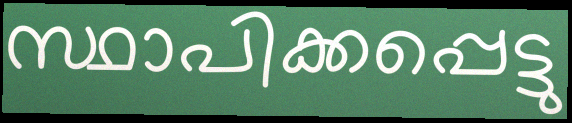
സ്ഥാപിക്കപ്പെട്ടു